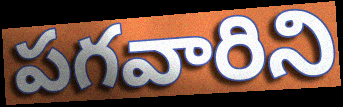
పగవారిని